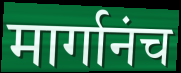
मार्गानंच